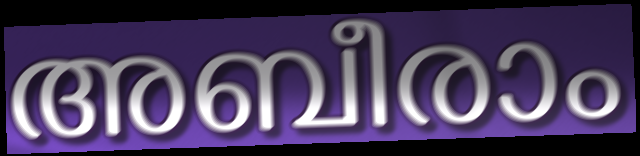
അബീരാം